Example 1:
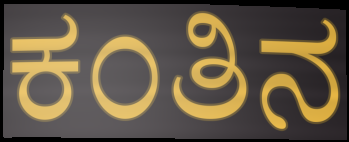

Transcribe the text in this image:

ಕಂತಿನ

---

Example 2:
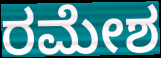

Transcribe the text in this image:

ರಮೇಶ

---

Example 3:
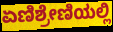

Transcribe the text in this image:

ಏಣಿಶ್ರೇಣಿಯಲ್ಲಿ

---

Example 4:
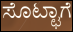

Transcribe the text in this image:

ಸೊಟ್ಟಾಗೆ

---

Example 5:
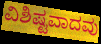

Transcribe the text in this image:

ವಿಶಿಷ್ಟವಾದವು